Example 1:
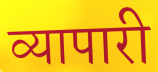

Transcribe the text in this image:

व्यापारी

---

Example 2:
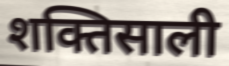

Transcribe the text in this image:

शक्तिसाली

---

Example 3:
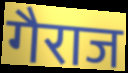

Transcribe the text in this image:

गैराज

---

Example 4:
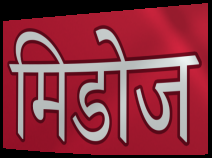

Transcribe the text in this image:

मिडोज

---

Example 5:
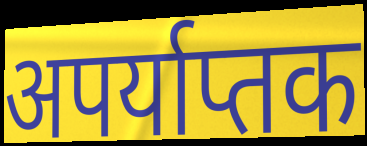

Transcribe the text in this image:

अपर्याप्तक